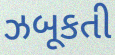
ઝબૂકતી